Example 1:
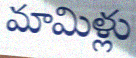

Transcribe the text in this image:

మామిళ్లు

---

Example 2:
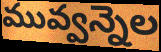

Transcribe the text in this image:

మువ్వన్నెల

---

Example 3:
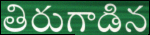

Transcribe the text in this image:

తిరుగాడిన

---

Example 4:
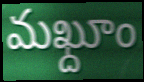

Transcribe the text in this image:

మఖ్దూం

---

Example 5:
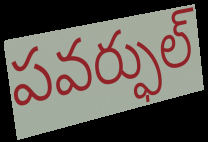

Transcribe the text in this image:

పవర్ఫుల్